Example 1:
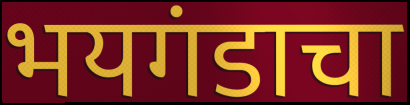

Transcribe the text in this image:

भयगंडाचा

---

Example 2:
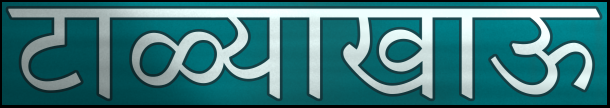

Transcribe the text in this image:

टाळ्याखाऊ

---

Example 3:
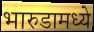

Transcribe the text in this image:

भारुडामध्ये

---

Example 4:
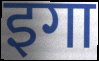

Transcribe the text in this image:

इगा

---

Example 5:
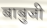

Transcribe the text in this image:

बाबुजी